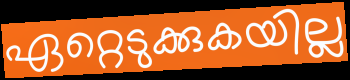
ഏറ്റെടുക്കുകയില്ല